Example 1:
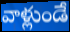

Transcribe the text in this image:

వాళ్లుండే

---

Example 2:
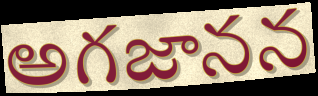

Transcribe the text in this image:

అగజానన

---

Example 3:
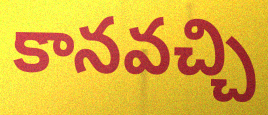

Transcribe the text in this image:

కానవచ్చి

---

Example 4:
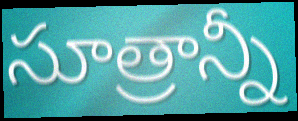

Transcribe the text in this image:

సూత్రాన్నీ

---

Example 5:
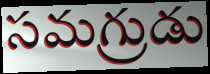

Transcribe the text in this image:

సమగ్రుడు